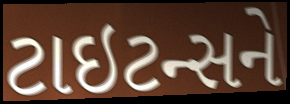
ટાઇટન્સને